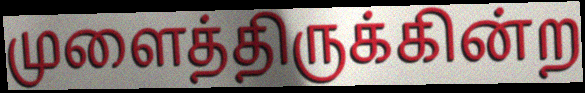
முளைத்திருக்கின்ற